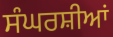
ਸੰਘਰਸ਼ੀਆਂ